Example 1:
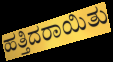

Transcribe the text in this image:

ಹತ್ತಿದರಾಯಿತು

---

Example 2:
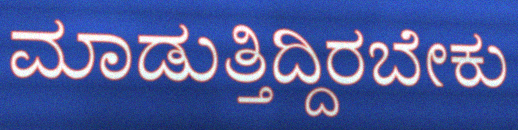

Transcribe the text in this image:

ಮಾಡುತ್ತಿದ್ದಿರಬೇಕು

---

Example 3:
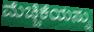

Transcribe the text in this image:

ಮೆಚ್ಚಿಕೆಯನ್ನು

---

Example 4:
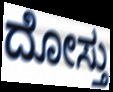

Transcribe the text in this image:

ದೋಸ್ತು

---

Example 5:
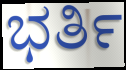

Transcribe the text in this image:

ಭರ್ತಿ